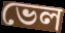
ভেল